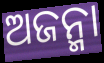
ଅଜନ୍ମା